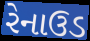
રેનાઉડ